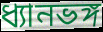
ধ্যানভঙ্গ